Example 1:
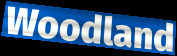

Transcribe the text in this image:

Woodland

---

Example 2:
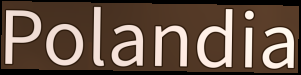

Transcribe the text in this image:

Polandia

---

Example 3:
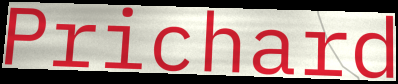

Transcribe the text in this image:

Prichard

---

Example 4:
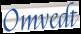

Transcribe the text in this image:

Omvedt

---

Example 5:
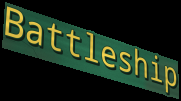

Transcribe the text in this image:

Battleship